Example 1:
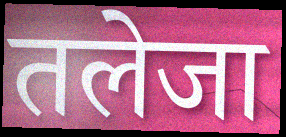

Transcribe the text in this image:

तलेजा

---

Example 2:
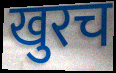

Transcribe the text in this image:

खुरच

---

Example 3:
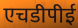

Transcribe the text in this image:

एचडीपीई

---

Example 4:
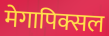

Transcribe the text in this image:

मेगापिक्सल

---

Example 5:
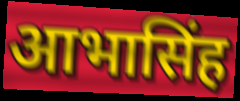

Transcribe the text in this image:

आभासिंह